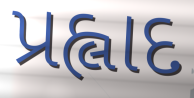
પ્રહ્લાદ